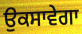
ਉਕਸਾਵੇਗਾ